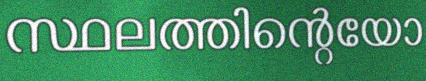
സ്ഥലത്തിന്റെയോ